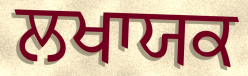
ਲਖਾਯਕ